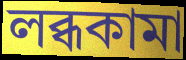
লব্ধকামা